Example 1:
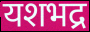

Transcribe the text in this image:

यशभद्र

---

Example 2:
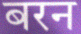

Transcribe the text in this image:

बरन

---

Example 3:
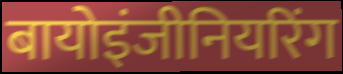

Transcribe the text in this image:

बायोइंजीनियरिंग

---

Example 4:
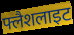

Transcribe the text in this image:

फ्लैशलाइट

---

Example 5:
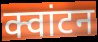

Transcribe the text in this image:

क्वांटन